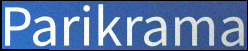
Parikrama